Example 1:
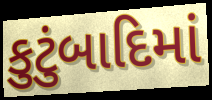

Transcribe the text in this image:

કુટુંબાદિમાં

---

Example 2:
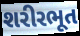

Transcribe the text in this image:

શરીરભૂત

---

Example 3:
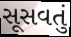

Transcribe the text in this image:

સૂસવતું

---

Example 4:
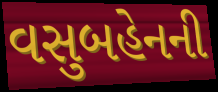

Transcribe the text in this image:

વસુબહેનની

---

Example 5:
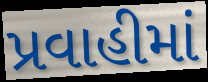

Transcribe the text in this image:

પ્રવાહીમાં